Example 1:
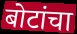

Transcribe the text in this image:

बोटांचा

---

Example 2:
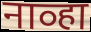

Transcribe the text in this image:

नाव्हा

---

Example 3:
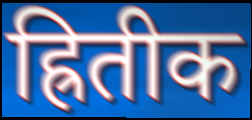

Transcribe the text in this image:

ह्रितीक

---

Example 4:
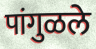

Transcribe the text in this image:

पांगुळले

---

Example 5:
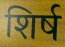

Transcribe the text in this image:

शिर्ष